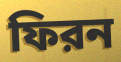
ফিরন